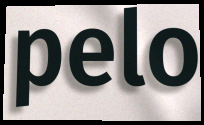
pelo